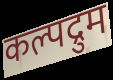
कल्पद्रुम